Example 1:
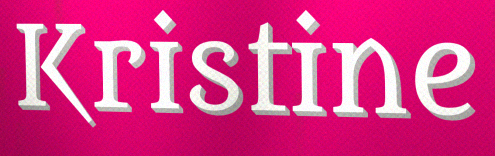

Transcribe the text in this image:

Kristine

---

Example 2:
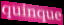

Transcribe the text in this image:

quinque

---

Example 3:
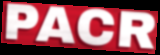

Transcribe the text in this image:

PACR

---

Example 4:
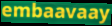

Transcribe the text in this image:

embaavaay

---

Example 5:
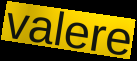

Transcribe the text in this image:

valere